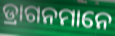
ଡ୍ରାଗନମାନେ